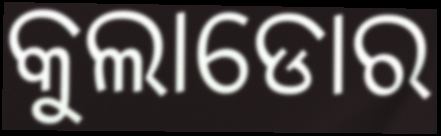
କୁଲାଡୋର